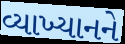
વ્યાખ્યાનને